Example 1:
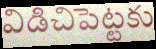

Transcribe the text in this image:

విడిచిపెట్టకు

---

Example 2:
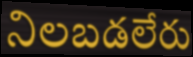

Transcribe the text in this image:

నిలబడలేరు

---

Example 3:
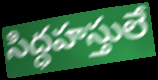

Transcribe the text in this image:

సిద్ధహస్తులే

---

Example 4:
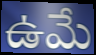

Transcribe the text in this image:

ఉమే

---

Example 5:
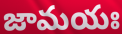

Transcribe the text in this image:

జామయః